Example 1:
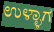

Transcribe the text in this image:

ಉಳ್ಳಾಗ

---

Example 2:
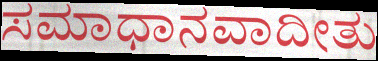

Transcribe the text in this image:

ಸಮಾಧಾನವಾದೀತು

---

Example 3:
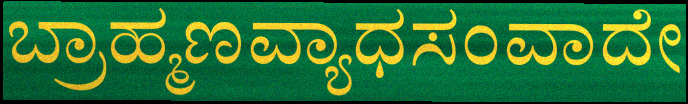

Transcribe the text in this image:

ಬ್ರಾಹ್ಮಣವ್ಯಾಧಸಂವಾದೇ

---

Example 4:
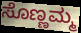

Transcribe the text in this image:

ಸೊಣ್ಣಮ್ಮ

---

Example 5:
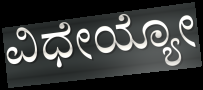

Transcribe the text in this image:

ವಿಧೇಯ್ಯೋ